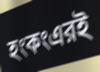
হংকংএরই